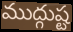
ముద్గుష్ట